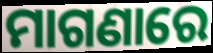
ମାଗଣାରେ